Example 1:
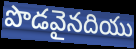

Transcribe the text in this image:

పొడవైనదియు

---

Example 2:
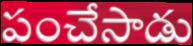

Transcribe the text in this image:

పంచేసాడు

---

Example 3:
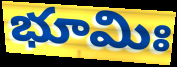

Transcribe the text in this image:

భూమిః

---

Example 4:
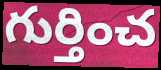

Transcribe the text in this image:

గుర్తించ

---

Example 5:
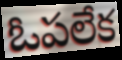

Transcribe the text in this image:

ఓపలేక